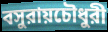
বসুরায়চৌধুরী